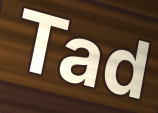
Tad